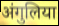
अंगुलिया